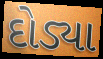
દોડ્યા